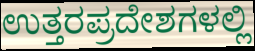
ಉತ್ತರಪ್ರದೇಶಗಳಲ್ಲಿ